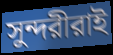
সুন্দরীরাই